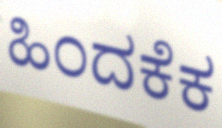
ಹಿಂದಕೆಕ